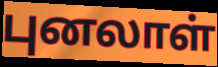
புனலாள்